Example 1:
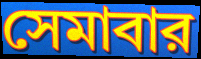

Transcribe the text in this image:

সেমাবার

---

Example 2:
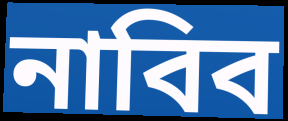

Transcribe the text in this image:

নাবিব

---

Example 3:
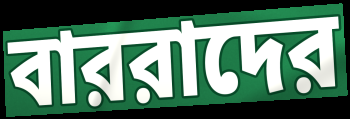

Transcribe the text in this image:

বাররাদের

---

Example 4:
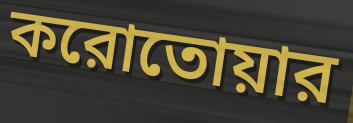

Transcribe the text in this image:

করোতোয়ার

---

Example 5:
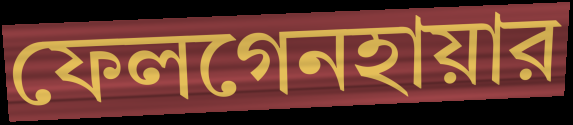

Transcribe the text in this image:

ফেলগেনহায়ার